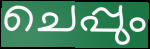
ചെപ്പും